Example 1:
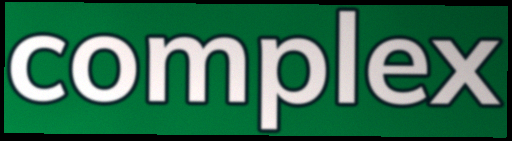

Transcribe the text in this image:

complex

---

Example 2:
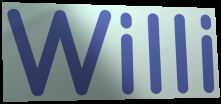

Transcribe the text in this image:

Willi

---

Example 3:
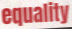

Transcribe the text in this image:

equality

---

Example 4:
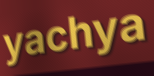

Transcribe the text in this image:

yachya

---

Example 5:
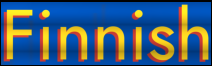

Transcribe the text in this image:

Finnish